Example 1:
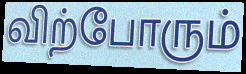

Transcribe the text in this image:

விற்போரும்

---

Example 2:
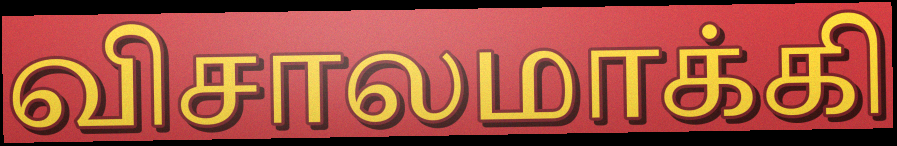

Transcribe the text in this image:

விசாலமாக்கி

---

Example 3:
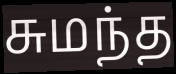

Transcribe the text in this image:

சுமந்த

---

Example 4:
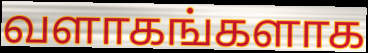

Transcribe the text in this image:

வளாகங்களாக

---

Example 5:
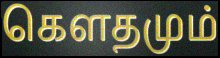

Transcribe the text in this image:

கெளதமும்